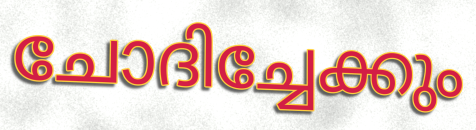
ചോദിച്ചേക്കും